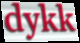
dykk